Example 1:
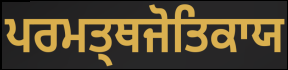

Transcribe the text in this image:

ਪਰਮਤ੍ਥਜੋਤਿਕਾਯ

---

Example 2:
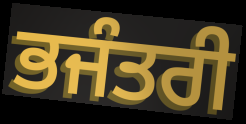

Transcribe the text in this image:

ਭਜੰਤਰੀ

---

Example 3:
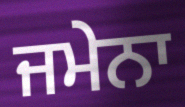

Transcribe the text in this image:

ਜਮੇਨਾ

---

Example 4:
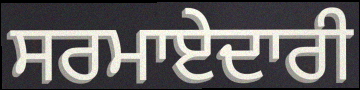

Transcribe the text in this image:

ਸਰਮਾਏਦਾਰੀ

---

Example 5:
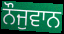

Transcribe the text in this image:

ਨੌਜੁਵਾਨ